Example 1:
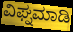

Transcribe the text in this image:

ವಿಘ್ನಮಾಡಿ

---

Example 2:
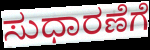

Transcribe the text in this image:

ಸುಧಾರಣೆಗೆ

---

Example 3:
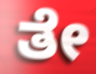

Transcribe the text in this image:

ತೇ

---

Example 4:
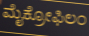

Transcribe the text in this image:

ಮೈಕ್ರೋಫಿಲಂ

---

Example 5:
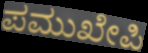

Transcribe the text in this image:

ಪಮುಖೇಪಿ